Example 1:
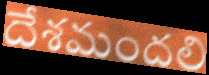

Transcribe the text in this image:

దేశమందలి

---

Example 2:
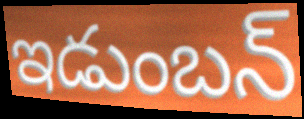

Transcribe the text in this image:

ఇడుంబన్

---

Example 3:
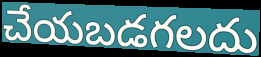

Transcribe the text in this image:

చేయబడగలదు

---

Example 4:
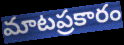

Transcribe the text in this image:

మాటప్రకారం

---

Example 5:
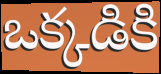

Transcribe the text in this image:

ఒక్కడికి